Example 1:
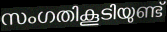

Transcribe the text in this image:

സംഗതികൂടിയുണ്ട്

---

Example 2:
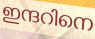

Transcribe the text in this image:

ഇന്ദറിനെ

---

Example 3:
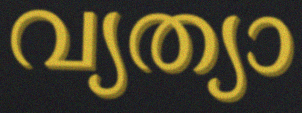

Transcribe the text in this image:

വ്യത്യാ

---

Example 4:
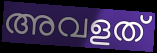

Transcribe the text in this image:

അവളത്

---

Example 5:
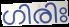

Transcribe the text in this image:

ഗിരിഃ